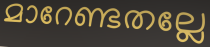
മാറേണ്ടതല്ലേ